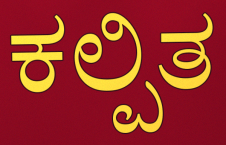
ಕಲ್ಪಿತ